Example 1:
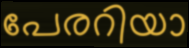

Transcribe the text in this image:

പേരറിയാ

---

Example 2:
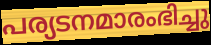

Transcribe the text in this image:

പര്യടനമാരംഭിച്ചു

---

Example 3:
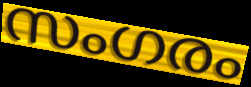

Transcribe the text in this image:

സംഗരം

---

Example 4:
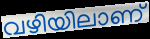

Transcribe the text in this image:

വഴിയിലാണ്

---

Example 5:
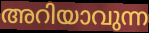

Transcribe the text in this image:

അറിയാവുന്ന